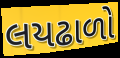
લયઢાળો